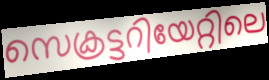
സെക്രട്ടറിയേറ്റിലെ